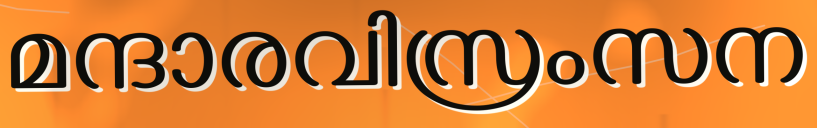
മന്ദാരവിസ്രംസന